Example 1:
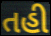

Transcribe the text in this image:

તહી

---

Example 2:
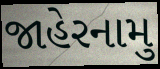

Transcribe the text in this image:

જાહેરનામુ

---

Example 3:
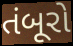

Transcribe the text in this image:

તંબૂરો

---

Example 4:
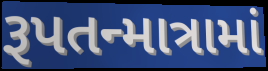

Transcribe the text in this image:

રૂપતન્માત્રામાં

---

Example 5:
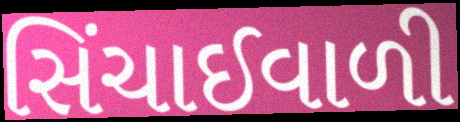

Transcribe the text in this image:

સિંચાઈવાળી